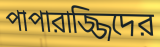
পাপারাজ্জিদের